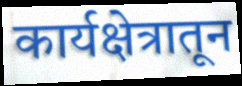
कार्यक्षेत्रातून